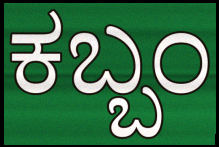
ಕಬ್ಬಂ